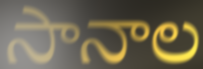
సానాల